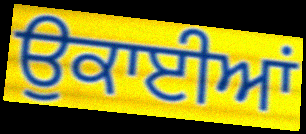
ਉਕਾਈਆਂ